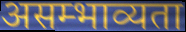
असम्भाव्यता